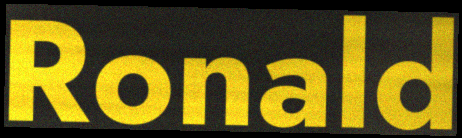
Ronald